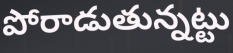
పోరాడుతున్నట్టు